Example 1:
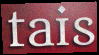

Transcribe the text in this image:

tais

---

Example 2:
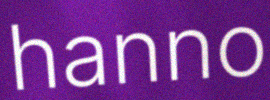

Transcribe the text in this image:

hanno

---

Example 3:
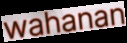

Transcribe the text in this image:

wahanan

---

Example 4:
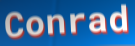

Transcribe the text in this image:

Conrad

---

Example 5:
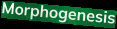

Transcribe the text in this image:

Morphogenesis